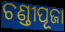
ଚଣ୍ଡୀପୂଜା